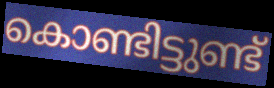
കൊണ്ടിട്ടുണ്ട്